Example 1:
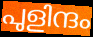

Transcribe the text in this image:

പുളിന്ദം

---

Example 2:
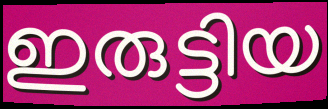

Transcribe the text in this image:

ഇരുട്ടിയ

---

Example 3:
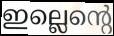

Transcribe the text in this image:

ഇല്ലെന്റെ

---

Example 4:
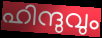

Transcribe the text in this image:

ഹിന്ദുവും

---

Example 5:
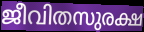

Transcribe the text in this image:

ജീവിതസുരക്ഷ